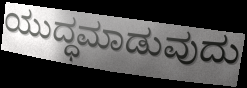
ಯುದ್ಧಮಾಡುವುದು